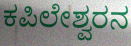
ಕಪಿಲೇಶ್ವರನ